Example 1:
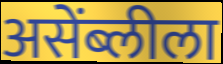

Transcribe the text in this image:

असेंब्लीला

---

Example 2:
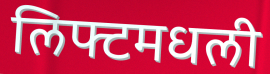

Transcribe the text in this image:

लिफ्टमधली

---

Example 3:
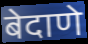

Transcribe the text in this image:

बेदाणे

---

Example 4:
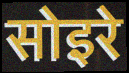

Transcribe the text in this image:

सोइरे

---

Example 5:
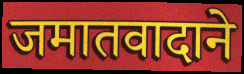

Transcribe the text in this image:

जमातवादाने